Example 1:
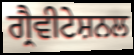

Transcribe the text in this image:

ਗ੍ਰੈਵੀਟੇਸ਼ਨਲ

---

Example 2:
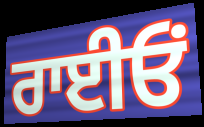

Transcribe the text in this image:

ਰਾਈਓਂ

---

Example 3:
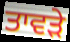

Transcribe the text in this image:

ਤਾਵੜੇ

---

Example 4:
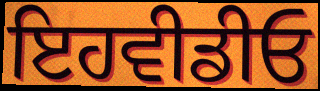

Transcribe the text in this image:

ਇਹਵੀਡੀਓ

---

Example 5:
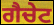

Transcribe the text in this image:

ਗੈਚੇਟ